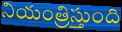
నియంత్రిస్తుంది